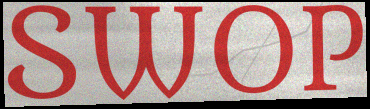
SWOP